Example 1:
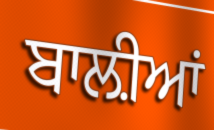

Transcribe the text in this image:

ਬਾਲ਼ੀਆਂ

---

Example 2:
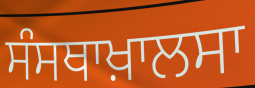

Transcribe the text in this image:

ਸੰਸਥਾਖ਼ਾਲਸਾ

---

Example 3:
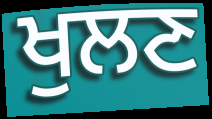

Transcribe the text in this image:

ਖੁਲਣ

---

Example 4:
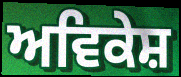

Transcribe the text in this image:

ਅਵਿਕੇਸ਼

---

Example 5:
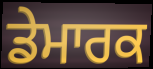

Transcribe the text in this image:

ਡੇਮਾਰਕ